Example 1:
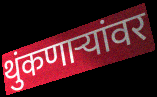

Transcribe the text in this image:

थुंकणाऱ्यांवर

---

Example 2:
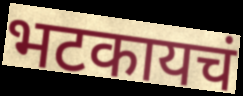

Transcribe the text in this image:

भटकायचं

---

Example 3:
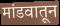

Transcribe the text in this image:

मांडवातून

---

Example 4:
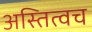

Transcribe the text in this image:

अस्तित्वच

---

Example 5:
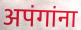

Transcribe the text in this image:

अपंगांना